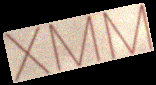
XMM